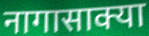
नागासाक्या